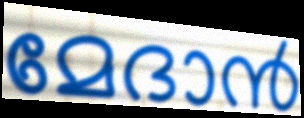
മേദാൻ